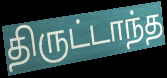
திருட்டாந்த